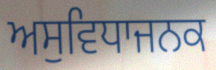
ਅਸੁਵਿਧਾਜਨਕ